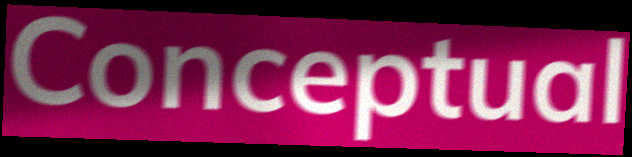
Conceptual